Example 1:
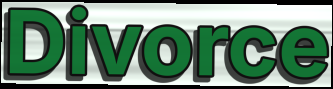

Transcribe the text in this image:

Divorce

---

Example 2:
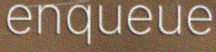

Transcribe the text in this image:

enqueue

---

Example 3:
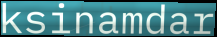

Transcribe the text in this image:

ksinamdar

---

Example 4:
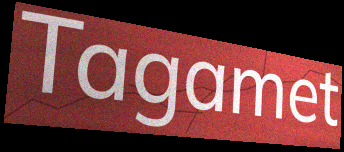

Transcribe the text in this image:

Tagamet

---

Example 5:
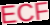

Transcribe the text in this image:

ECF